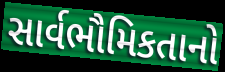
સાર્વભૌમિકતાનો